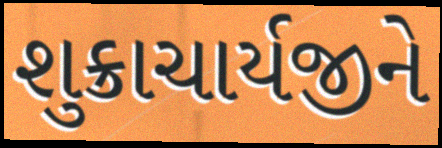
શુક્રાચાર્યજીને